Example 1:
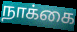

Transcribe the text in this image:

நாக்கை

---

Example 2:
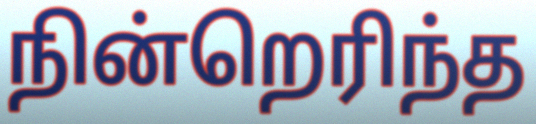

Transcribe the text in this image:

நின்றெரிந்த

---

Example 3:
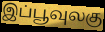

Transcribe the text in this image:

இப்பூவுலகு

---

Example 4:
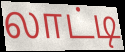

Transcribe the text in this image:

லாட்டி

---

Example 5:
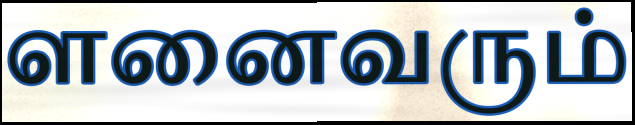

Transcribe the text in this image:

ளனைவரும்